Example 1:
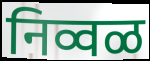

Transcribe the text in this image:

निव्वळ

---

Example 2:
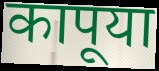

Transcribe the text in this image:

कापूया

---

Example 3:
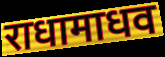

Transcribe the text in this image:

राधामाधव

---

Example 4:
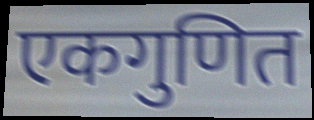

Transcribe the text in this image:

एकगुणित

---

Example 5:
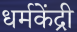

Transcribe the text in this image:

धर्मकेंद्री